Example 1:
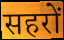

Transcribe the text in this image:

सहरों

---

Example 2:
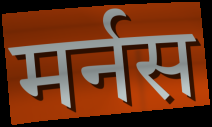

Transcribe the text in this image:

मर्नस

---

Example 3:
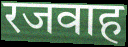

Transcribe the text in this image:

रजवाह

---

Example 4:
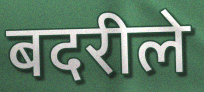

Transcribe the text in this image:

बदरीले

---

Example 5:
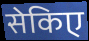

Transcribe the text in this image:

सेकिए